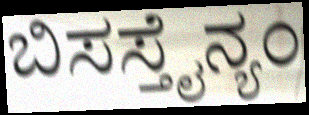
ಬಿಸಸ್ತೈನ್ಯಂ